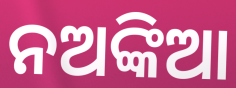
ନଅଙ୍କିଆ